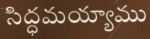
సిద్ధమయ్యాము